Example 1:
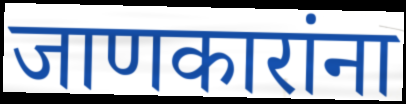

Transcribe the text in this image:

जाणकारांना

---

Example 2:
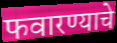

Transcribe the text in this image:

फवारण्याचे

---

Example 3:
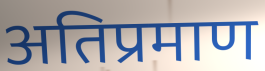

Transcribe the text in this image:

अतिप्रमाण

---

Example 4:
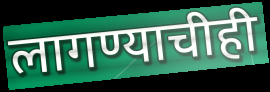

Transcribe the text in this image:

लागण्याचीही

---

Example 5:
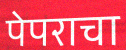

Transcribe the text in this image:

पेपराचा